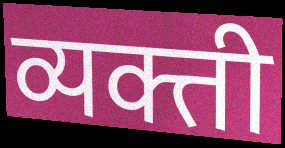
व्यक्ती